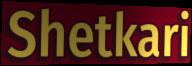
Shetkari